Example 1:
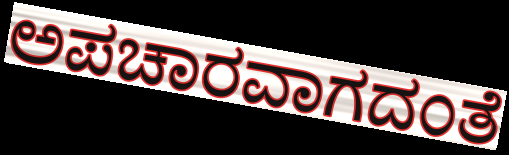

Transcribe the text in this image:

ಅಪಚಾರವಾಗದಂತೆ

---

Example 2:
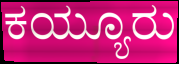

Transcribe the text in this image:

ಕಯ್ಯೂರು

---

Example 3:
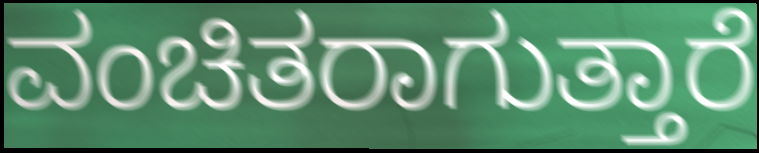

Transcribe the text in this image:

ವಂಚಿತರಾಗುತ್ತಾರೆ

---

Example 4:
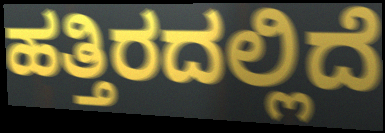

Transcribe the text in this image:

ಹತ್ತಿರದಲ್ಲಿದೆ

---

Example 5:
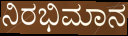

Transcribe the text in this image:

ನಿರಭಿಮಾನ